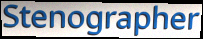
Stenographer